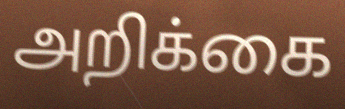
அறிக்கை